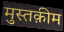
मुस्तक़ीम